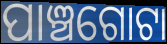
ପାଞ୍ଚଗୋଟା